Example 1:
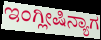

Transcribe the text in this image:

ಇಂಗ್ಲೀಷಿನ್ಯಾಗ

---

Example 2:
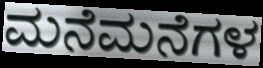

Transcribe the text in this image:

ಮನೆಮನೆಗಳ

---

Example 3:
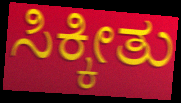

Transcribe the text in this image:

ಸಿಕ್ಕೀತು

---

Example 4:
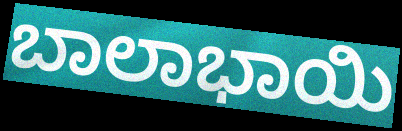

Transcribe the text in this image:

ಬಾಲಾಭಾಯಿ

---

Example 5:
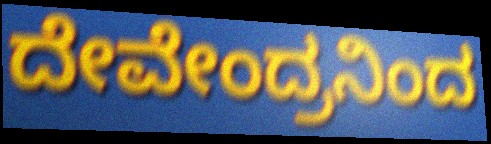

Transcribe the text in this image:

ದೇವೇಂದ್ರನಿಂದ